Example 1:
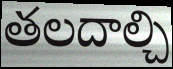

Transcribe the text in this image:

తలదాల్చి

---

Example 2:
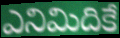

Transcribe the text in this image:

ఎనిమిదికే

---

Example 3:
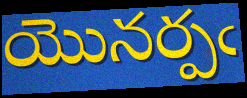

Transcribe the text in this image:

యొనర్పఁ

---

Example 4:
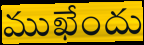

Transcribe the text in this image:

ముఖేందు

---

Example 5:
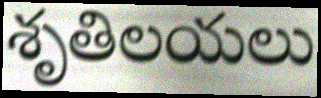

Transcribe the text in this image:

శృతిలయలు